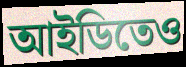
আইডিতেও